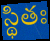
స్థితః